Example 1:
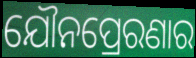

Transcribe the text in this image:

ଯୌନପ୍ରେରଣାର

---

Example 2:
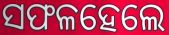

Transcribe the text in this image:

ସଫଳହେଲେ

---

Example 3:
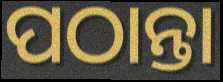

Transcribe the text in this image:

ପଠାନ୍ତା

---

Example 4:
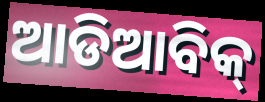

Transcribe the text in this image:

ଆଡିଆବିକ୍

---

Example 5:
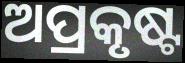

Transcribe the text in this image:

ଅପ୍ରକୃଷ୍ଟ